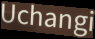
Uchangi